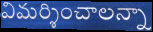
విమర్శించాలన్నా